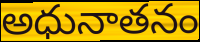
అధునాతనం